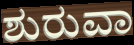
ಶುರುವಾ